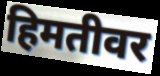
हिमतीवर